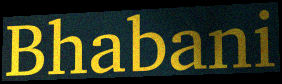
Bhabani